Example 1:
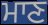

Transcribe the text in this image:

ਮਾਣ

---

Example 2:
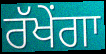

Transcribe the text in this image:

ਰੱਖੇਂਗਾ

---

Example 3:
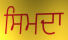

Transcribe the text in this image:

ਸਿਮਦਾ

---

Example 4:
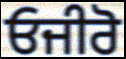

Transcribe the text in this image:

ਓਜੀਰੋ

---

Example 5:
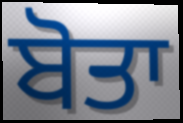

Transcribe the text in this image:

ਬੋਤਾ